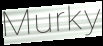
Murky